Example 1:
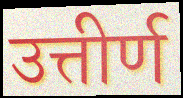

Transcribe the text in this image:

उत्तीर्ण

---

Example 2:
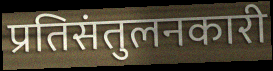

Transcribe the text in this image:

प्रतिसंतुलनकारी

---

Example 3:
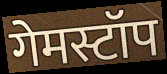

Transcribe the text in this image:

गेमस्टॉप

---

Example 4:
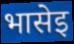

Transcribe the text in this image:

भासेइ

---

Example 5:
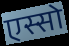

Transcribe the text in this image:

एस्सो